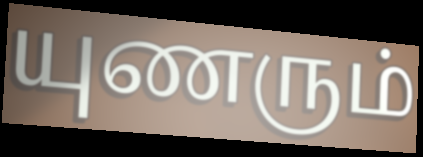
யுணரும்